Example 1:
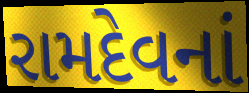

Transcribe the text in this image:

રામદેવનાં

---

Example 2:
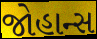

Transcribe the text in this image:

જોહાન્સ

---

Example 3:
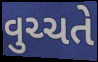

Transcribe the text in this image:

વુચ્ચતે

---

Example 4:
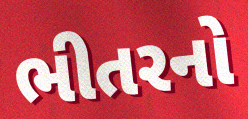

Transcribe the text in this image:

ભીતરનો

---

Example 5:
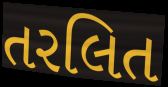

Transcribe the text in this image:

તરલિત